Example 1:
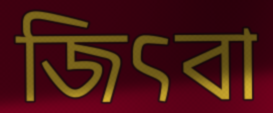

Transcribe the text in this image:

জিৎবা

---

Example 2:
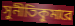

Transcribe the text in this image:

সুনীতিকুমারে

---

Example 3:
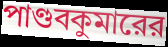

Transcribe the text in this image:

পাণ্ডবকুমারের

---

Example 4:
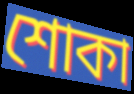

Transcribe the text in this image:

শোকা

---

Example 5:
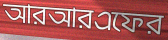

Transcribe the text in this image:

আরআরএফের